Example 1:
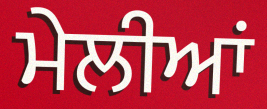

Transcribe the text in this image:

ਮੇਲੀਆਂ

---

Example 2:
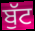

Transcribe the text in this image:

ਬੁੱਟ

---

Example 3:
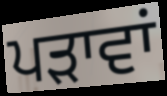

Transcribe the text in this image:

ਪੜਾਵਾਂ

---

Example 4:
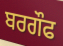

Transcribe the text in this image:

ਬਰਗੌਫ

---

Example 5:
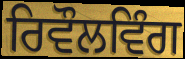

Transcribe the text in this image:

ਰਿਵੌਲਵਿੰਗ